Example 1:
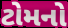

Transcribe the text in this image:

ટોમનો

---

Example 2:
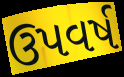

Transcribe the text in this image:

ઉપવર્ષ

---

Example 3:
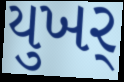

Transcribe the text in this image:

યુખર્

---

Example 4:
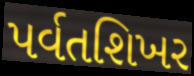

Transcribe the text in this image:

પર્વતશિખર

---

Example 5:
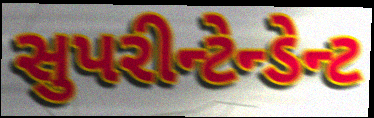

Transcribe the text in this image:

સુપરીન્ટેન્ડેન્ટ